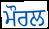
ਮੌਰਲ